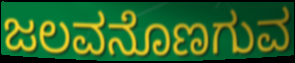
ಜಲವನೊಣಗುವ